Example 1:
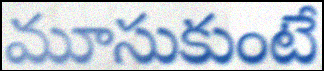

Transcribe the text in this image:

మూసుకుంటే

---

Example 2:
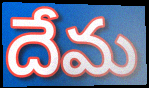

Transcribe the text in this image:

దేమ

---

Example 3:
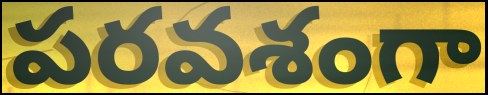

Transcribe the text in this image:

పరవశంగా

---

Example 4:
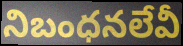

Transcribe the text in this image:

నిబంధనలేవీ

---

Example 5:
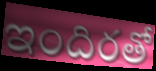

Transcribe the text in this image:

ఇందిరతో